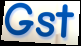
Gst